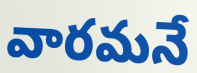
వారమనే